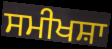
ਸਮੀਖਸ਼ਾ